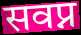
सवप्न